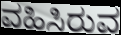
ವಹಿಸಿರುವ